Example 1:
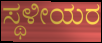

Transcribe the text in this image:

ಸ್ಥಳೀಯರ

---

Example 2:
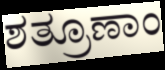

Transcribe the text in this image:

ಶತ್ರೂಣಾಂ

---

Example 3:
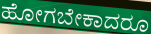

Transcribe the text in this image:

ಹೋಗಬೇಕಾದರೂ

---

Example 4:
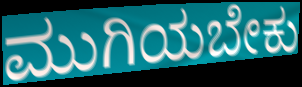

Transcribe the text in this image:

ಮುಗಿಯಬೇಕು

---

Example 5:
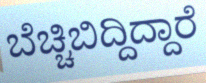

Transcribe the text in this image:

ಬೆಚ್ಚಿಬಿದ್ದಿದ್ದಾರೆ